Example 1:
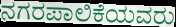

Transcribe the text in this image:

ನಗರಪಾಲಿಕೆಯವರು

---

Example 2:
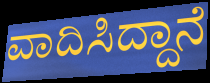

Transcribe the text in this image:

ವಾದಿಸಿದ್ದಾನೆ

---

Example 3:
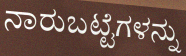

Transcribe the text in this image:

ನಾರುಬಟ್ಟೆಗಳನ್ನು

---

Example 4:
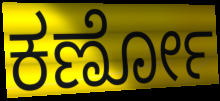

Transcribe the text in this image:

ಕರ್ಣೋ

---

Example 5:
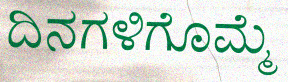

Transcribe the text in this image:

ದಿನಗಳಿಗೊಮ್ಮೆ